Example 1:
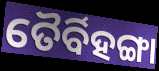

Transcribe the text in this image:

ତୈର୍ବିହଙ୍ଗା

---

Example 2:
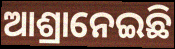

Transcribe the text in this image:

ଆଶ୍ରାନେଇଛି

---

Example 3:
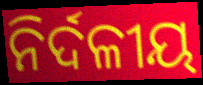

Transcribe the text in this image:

ନିର୍ଦଳୀୟ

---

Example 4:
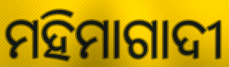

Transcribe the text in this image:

ମହିମାଗାଦୀ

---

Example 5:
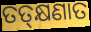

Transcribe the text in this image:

ତତ୍କ୍ଷଣାତ